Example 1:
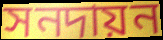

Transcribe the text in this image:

সনদায়ন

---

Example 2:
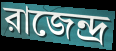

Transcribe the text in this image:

রাজেন্দ্র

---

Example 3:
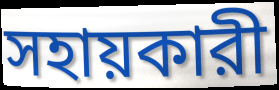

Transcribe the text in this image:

সহায়কারী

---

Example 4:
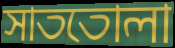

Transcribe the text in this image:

সাততোলা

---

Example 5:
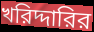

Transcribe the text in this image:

খরিদ্দারির